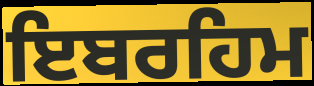
ਇਬਰਹਿਮ